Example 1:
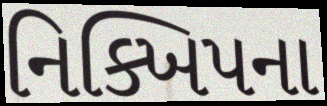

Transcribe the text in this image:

નિક્ખિપના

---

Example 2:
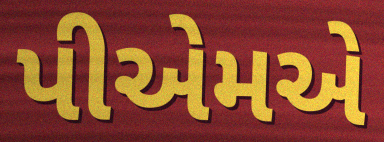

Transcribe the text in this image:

પીએમએ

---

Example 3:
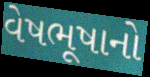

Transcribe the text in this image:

વેષભૂષાનો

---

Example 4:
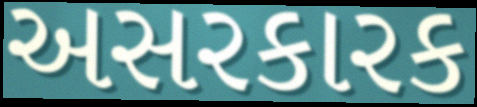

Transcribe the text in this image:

અસરકારક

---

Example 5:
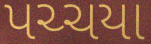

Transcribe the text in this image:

પચ્ચયા